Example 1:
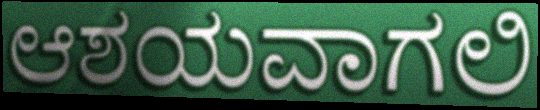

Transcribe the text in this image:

ಆಶಯವಾಗಲಿ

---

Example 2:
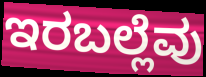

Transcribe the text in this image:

ಇರಬಲ್ಲೆವು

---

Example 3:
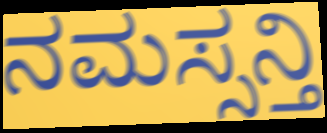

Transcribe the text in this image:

ನಮಸ್ಸನ್ತಿ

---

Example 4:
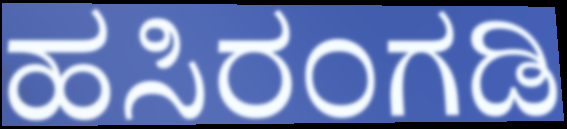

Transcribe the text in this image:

ಹಸಿರಂಗಡಿ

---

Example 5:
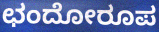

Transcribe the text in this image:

ಛಂದೋರೂಪ